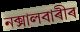
নক্সালবাৰীৰ